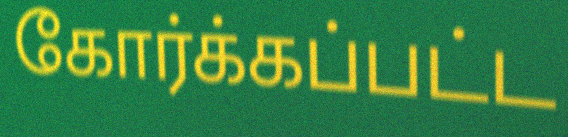
கோர்க்கப்பட்ட